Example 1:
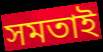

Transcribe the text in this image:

সমতাই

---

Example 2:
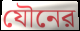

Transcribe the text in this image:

যৌনের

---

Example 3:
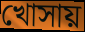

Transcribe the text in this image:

খোসায়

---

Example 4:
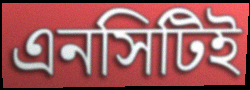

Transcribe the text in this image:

এনসিটিই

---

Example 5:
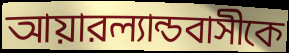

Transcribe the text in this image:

আয়ারল্যান্ডবাসীকে